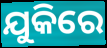
ଯୁକିରେ